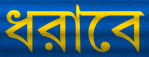
ধরাবে